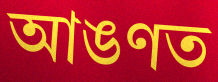
আঙণত